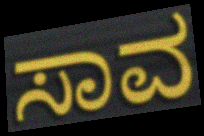
ಸಾವ